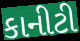
કાનીટી